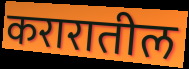
करारातील